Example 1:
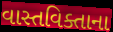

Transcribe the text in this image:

વાસ્તવિક્તાના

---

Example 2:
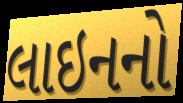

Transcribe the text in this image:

લાઇનનો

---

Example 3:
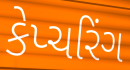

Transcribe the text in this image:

કેપ્ચરિંગ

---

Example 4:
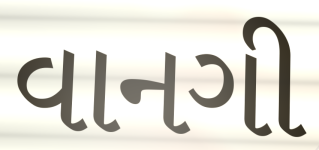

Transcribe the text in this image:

વાનગી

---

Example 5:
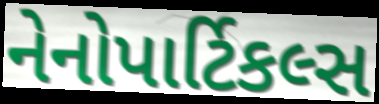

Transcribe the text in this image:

નેનોપાર્ટિકલ્સ